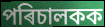
পৰিচালকক